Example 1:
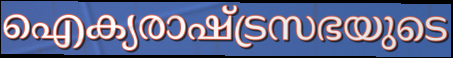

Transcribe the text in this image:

ഐക്യരാഷ്ട്രസഭയുടെ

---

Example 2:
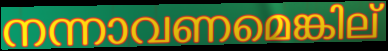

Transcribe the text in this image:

നന്നാവണമെങ്കില്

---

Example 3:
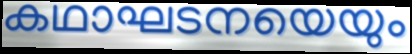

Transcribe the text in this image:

കഥാഘടനയെയും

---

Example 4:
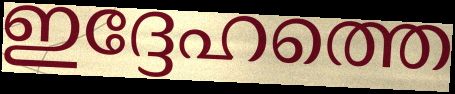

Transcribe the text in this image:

ഇദ്ദേഹത്തെ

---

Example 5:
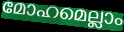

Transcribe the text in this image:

മോഹമെല്ലാം